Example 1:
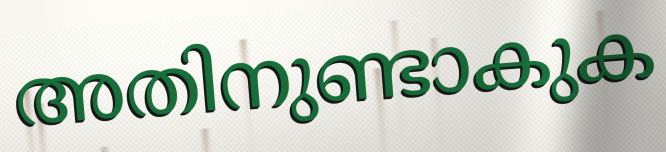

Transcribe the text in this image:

അതിനുണ്ടാകുക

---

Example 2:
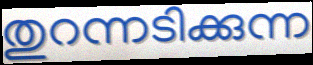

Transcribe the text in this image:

തുറന്നടിക്കുന്ന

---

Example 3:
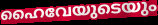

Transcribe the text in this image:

ഹൈവേയുടെയും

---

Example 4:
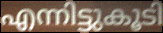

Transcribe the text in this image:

എന്നിട്ടുകൂടി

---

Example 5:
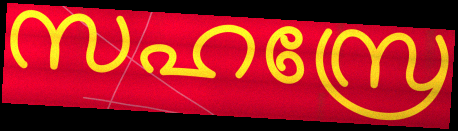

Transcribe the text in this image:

സഹസ്രേ